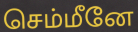
செம்மீனே